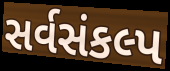
સર્વસંકલ્પ